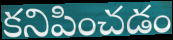
కనిపించడం